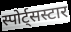
स्पोर्ट्सस्टार